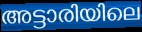
അട്ടാരിയിലെ